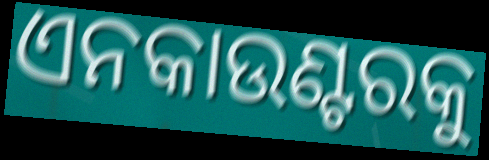
ଏନକାଉଣ୍ଟରକୁ